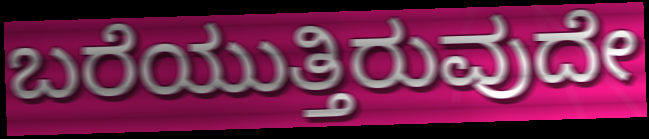
ಬರೆಯುತ್ತಿರುವುದೇ